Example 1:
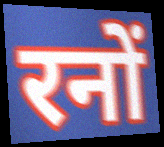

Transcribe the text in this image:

रनों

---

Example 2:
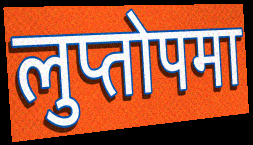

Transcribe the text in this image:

लुप्तोपमा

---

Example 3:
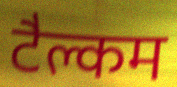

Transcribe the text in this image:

टैल्कम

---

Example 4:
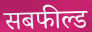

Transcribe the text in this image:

सबफील्ड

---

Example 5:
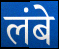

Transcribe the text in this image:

लंबे